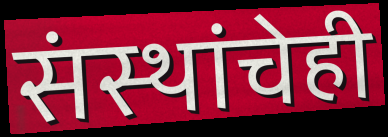
संस्थांचेही